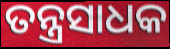
ତନ୍ତ୍ରସାଧକ